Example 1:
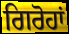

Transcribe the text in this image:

ਗਿਰੋਹਾਂ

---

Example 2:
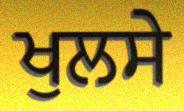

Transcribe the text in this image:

ਖੁਲਸੇ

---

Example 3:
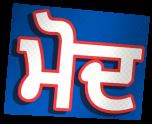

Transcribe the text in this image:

ਮੋਦ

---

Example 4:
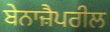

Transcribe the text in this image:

ਬੇਨਾਜ਼ੈਪਰੀਲ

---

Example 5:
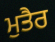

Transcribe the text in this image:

ਮੁਤੈਰ